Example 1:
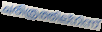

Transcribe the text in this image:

ചരിത്രത്തില്നിന്ന്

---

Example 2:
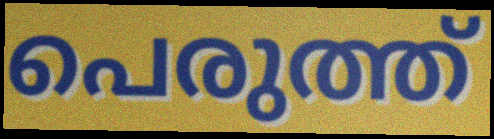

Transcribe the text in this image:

പെരുത്ത്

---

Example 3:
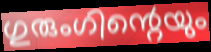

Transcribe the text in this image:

ഗുരുംഗിന്റെയും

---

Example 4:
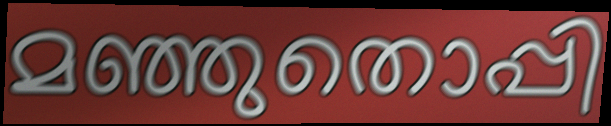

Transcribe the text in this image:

മഞ്ഞുതൊപ്പി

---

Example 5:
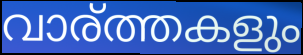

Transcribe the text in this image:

വാര്ത്തകളും